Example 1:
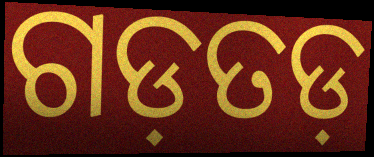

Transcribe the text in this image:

ଗଡ଼ତଡ଼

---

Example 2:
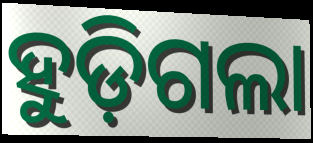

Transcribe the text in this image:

ହୁଡ଼ିଗଲା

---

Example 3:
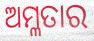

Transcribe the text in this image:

ଅମ୍ଳତାର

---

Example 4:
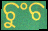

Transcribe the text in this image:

ଚୁଂଚ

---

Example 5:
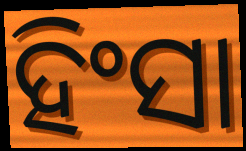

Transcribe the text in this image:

ହିଂସା